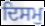
ਦਿਸਮੁ